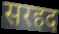
सरहद